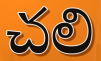
చలి